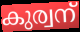
കുര്വന്